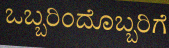
ಒಬ್ಬರಿಂದೊಬ್ಬರಿಗೆ